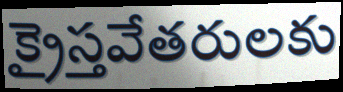
క్రైస్తవేతరులకు